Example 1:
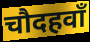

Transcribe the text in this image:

चौदहवाँ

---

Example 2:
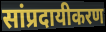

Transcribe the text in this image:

सांप्रदायीकरण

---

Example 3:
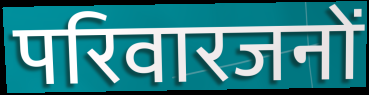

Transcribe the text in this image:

परिवारजनों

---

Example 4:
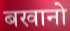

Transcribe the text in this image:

बखानो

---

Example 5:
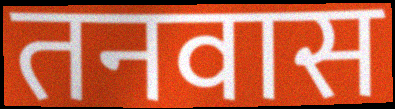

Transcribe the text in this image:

तनवास